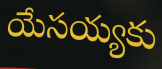
యేసయ్యకు